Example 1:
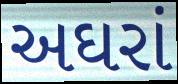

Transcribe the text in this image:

અઘરાં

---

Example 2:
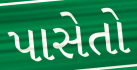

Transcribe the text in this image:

પાસેતો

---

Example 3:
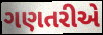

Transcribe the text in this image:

ગણતરીએ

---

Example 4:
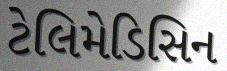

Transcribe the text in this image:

ટેલિમેડિસિન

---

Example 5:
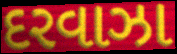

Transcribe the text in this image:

દરવાઝા